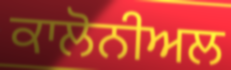
ਕਾਲੋਨੀਅਲ